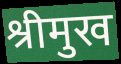
श्रीमुख